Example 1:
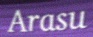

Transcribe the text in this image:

Arasu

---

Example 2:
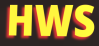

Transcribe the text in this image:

HWS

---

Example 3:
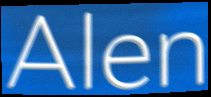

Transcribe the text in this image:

Alen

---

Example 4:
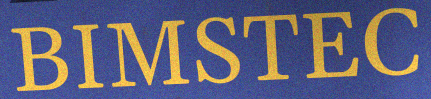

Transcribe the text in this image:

BIMSTEC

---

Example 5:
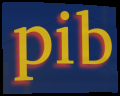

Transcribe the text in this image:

pib